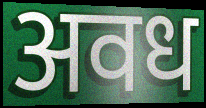
अवध